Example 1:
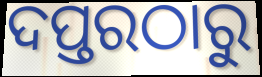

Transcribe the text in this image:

ଦପ୍ତରଠାରୁ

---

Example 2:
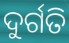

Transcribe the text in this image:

ଦୁର୍ଗତି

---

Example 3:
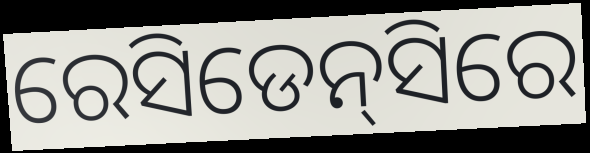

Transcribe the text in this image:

ରେସିଡେନ୍‌ସିରେ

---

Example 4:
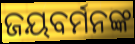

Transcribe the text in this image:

ଜୟବର୍ମନଙ୍କ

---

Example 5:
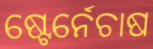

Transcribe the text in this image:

ଷ୍ଟେର୍ନେଚାଷ